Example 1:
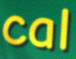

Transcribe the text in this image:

cal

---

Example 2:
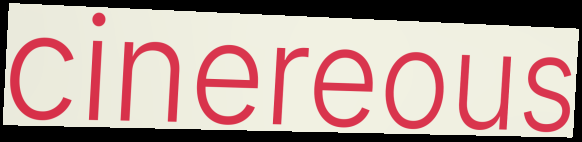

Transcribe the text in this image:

cinereous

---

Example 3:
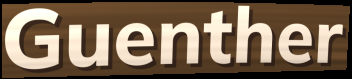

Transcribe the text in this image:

Guenther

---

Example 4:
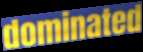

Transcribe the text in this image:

dominated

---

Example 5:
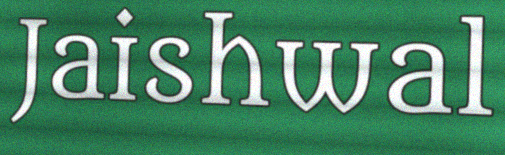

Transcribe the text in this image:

Jaishwal